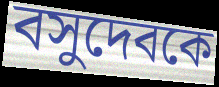
বসুদেবকে